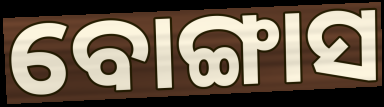
ବୋଙ୍ଗାସ